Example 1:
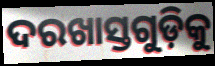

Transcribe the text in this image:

ଦରଖାସ୍ତଗୁଡ଼ିକୁ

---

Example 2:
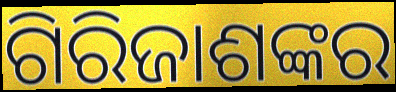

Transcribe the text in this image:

ଗିରିଜାଶଙ୍କର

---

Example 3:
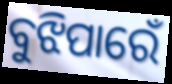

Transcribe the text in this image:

ବୁଝିପାରେଁ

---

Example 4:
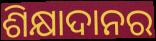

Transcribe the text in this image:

ଶିକ୍ଷାଦାନର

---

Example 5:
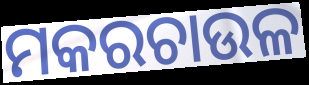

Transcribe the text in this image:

ମକରଚାଉଳ